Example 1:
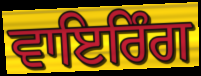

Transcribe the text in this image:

ਵਾਇਰਿੰਗ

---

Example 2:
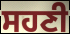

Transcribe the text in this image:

ਸਹਣੀ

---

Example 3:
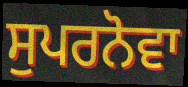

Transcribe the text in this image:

ਸੁਪਰਨੋਵਾ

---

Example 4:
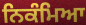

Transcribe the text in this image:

ਨਿਕੰਮਿਆ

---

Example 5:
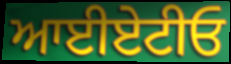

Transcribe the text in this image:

ਆਈਏਟੀਓ